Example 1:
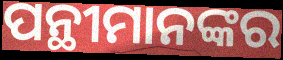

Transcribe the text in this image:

ପନ୍ଥୀମାନଙ୍କର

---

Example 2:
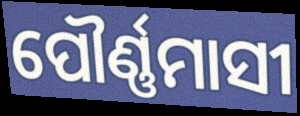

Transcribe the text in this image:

ପୌର୍ଣ୍ଣମାସୀ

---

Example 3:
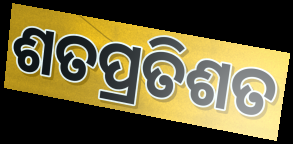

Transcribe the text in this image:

ଶତପ୍ରତିଶତ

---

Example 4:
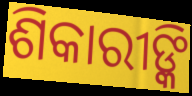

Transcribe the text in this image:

ଶିକାରୀଙ୍କି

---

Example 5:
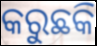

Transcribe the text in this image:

କରୁଛକି